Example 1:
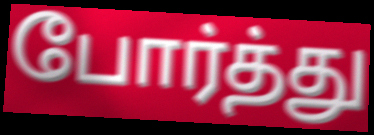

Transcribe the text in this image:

போர்த்து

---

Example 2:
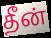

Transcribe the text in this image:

தீன்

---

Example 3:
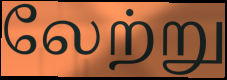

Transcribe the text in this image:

லேற்று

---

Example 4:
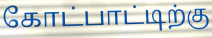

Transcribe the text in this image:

கோட்பாட்டிற்கு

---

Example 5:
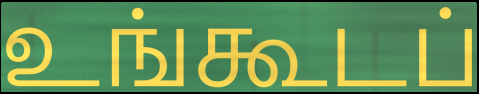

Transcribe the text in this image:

உங்கூடப்